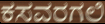
ಕಸವರಗಲಿ